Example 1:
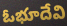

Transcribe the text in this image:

ఓభూదేవి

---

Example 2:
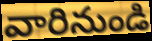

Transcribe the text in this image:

వారినుండి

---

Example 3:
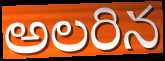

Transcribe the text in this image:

అలరిన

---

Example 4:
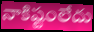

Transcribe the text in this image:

నాకిష్టంలేదు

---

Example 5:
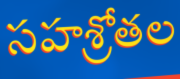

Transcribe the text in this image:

సహశ్రోతల